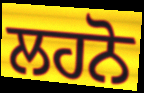
ਲਹਨੋ